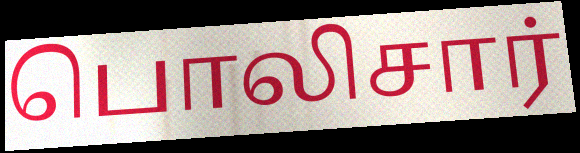
பொலிசார்